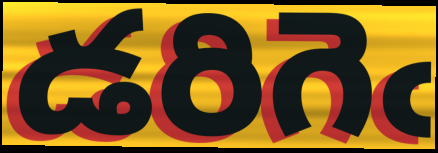
డరిగెఁ